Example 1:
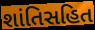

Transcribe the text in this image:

શાંતિસહિત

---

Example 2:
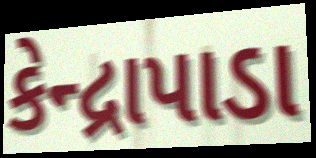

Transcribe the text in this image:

કેન્દ્રાપાડા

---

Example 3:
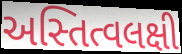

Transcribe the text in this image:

અસ્તિત્વલક્ષી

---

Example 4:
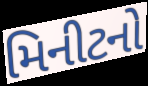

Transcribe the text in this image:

મિનીટનો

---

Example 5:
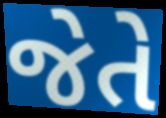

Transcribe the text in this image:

જેતે